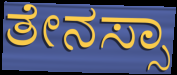
ತೇನಸ್ಸಾ